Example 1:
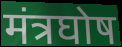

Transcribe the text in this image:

मंत्रघोष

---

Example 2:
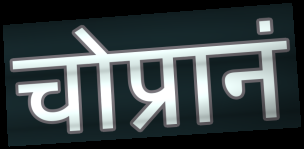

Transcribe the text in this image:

चोप्रानं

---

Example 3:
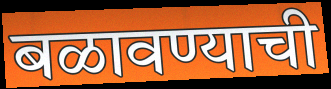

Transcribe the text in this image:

बळावण्याची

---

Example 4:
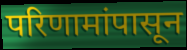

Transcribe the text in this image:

परिणामांपासून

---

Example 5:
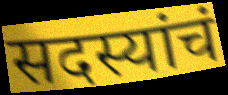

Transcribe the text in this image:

सदस्यांचं